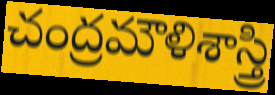
చంద్రమౌళిశాస్త్రి